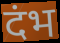
दंभ